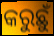
କରୁଛୁଁ